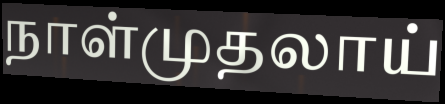
நாள்முதலாய்